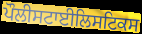
ਪੌਲੀਸਟਾਈਲਿਸਟਿਕਸ